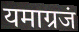
यमाग्रजं